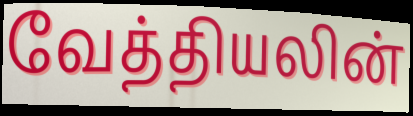
வேத்தியலின்